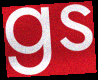
gs